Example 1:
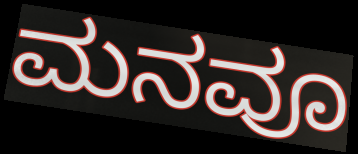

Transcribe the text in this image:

ಮನವೂ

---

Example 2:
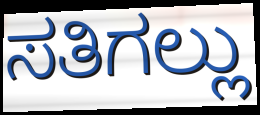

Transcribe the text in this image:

ಸತಿಗಲ್ಲು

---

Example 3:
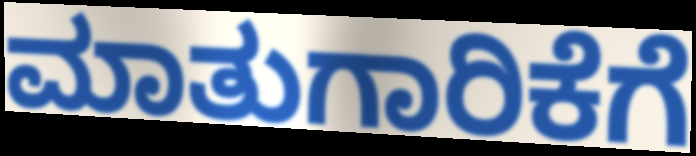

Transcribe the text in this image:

ಮಾತುಗಾರಿಕೆಗೆ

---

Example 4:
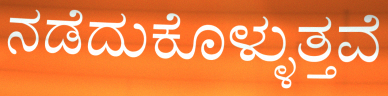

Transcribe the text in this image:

ನಡೆದುಕೊಳ್ಳುತ್ತವೆ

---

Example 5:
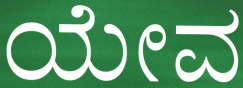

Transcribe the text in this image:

ಯೇವ